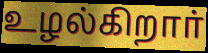
உழல்கிறார்